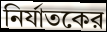
নির্যাতকের